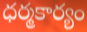
ధర్మకార్యం